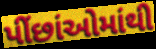
પીંછાંઓમાંથી